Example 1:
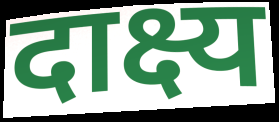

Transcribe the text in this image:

दाक्ष्य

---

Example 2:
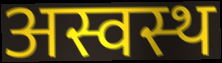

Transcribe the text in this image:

अस्वस्थ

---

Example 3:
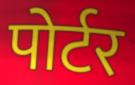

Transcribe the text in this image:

पोर्टर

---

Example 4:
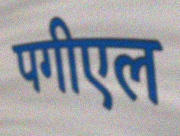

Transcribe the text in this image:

पगीएल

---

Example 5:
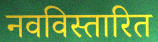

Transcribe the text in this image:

नवविस्तारित